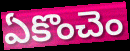
ఏకొంచెం